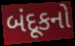
બંદૂકનો